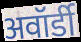
अवॉर्डी